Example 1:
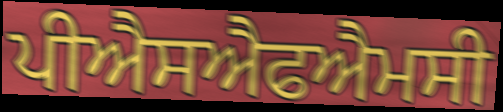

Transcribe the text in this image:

ਪੀਐਸਐਫਐਮਸੀ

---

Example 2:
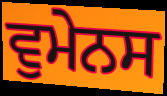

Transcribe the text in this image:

ਵੁਮੇਨਸ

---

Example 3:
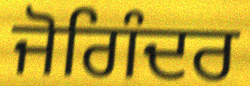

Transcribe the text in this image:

ਜੋਗਿੰਦਰ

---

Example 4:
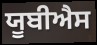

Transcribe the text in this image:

ਯੂਬੀਐਸ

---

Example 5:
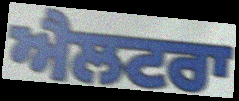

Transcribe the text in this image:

ਐਲਟਰਾ